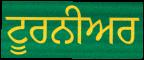
ਟੂਰਨੀਅਰ